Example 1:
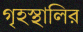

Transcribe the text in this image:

গৃহস্থালির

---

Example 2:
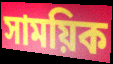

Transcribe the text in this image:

সাময়িক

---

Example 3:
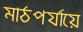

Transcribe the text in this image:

মাঠপর্যায়ে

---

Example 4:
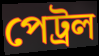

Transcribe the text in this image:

পেট্রল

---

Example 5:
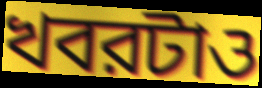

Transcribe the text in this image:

খবরটাও